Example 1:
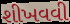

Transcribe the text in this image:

શીખવવી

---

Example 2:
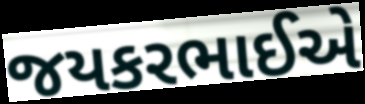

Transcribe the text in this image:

જયકરભાઈએ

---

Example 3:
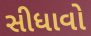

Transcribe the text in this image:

સીધાવો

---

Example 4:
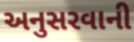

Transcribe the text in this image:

અનુસરવાની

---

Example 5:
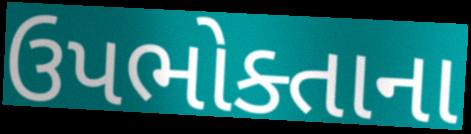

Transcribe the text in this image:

ઉપભોક્તાના